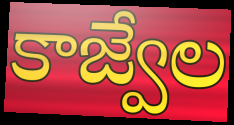
కాజ్వేల